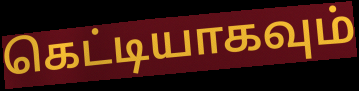
கெட்டியாகவும்